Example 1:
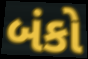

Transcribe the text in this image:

બંકો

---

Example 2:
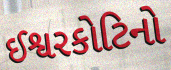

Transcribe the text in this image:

ઈશ્વરકોટિનો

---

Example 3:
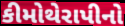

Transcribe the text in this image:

કીમોથેરાપીનો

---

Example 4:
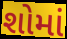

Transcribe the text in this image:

શોમાં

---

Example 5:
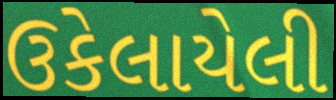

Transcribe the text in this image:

ઉકેલાયેલી